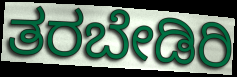
ತರಬೇಡಿರಿ